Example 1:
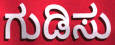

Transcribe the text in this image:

ಗುಡಿಸು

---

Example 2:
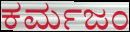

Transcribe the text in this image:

ಕರ್ಮಜಂ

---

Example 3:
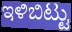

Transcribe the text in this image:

ಇಳಿಬಿಟ್ಟು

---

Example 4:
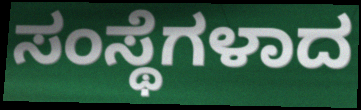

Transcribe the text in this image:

ಸಂಸ್ಥೆಗಳಾದ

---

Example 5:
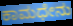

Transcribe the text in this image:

ಕಾಮಧೇನು